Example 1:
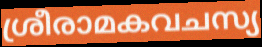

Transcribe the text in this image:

ശ്രീരാമകവചസ്യ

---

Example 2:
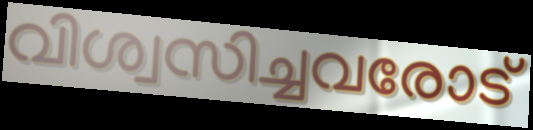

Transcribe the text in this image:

വിശ്വസിച്ചവരോട്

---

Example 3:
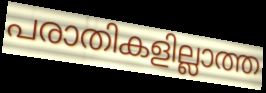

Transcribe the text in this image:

പരാതികളില്ലാത്ത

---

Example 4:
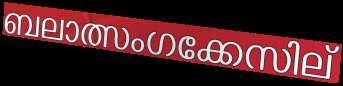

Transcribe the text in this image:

ബലാത്സംഗക്കേസില്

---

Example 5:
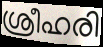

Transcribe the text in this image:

ശ്രീഹരി